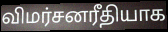
விமர்சனரீதியாக